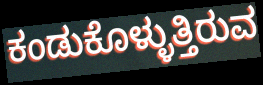
ಕಂಡುಕೊಳ್ಳುತ್ತಿರುವ